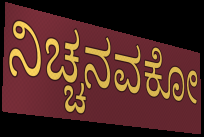
ನಿಚ್ಚನವಕೋ